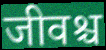
जीवश्च